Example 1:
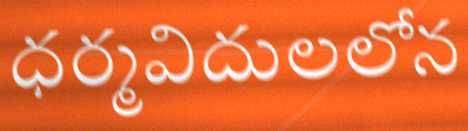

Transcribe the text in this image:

ధర్మవిదులలోన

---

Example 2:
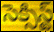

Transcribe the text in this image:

సెక్సిస్ట్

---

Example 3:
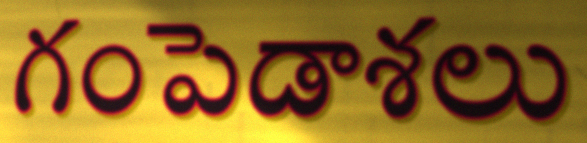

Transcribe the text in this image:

గంపెడాశలు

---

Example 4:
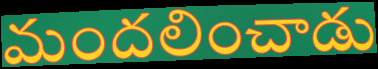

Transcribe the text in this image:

మందలించాడు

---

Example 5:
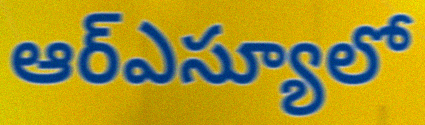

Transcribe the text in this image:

ఆర్ఎస్యూలో